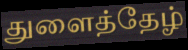
துளைத்தேழ்